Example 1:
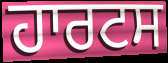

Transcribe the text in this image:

ਹਾਰਟਸ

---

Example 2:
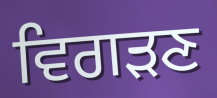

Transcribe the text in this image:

ਵਿਗੜਣ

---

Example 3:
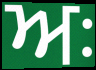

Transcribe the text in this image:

ਅਃ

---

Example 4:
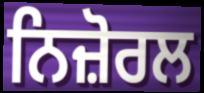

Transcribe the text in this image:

ਨਿਜ਼ੋਰਲ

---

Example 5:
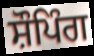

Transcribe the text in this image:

ਸ਼ੌਪਿੰਗ